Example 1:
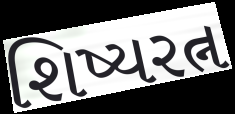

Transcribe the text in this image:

શિષ્યરત્ન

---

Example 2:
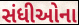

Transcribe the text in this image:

સંધીઓના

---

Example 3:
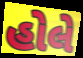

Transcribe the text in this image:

હોલે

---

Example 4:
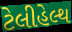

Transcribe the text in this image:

ટેલીહેલ્થ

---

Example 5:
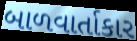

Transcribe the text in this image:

બાળવાર્તાકાર